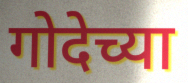
गोदेच्या